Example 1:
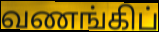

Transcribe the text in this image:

வணங்கிப்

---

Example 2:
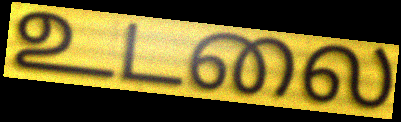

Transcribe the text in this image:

உடலை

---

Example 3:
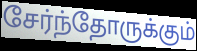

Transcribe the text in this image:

சேர்ந்தோருக்கும்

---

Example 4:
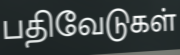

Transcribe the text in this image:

பதிவேடுகள்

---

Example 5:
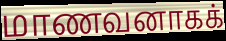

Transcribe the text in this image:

மாணவனாகக்